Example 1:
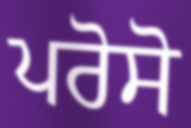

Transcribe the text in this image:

ਪਰੋਸੋ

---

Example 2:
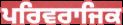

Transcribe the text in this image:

ਪਰਿਵਰਾਜਿਕ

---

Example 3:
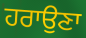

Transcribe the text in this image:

ਹਰਾਉਣਾ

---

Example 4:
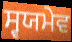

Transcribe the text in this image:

ਸ੍ਵਯਮੇਵ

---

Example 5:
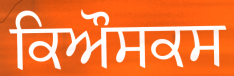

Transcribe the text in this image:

ਕਿਔਸਕਸ